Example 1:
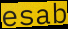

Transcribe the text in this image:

esab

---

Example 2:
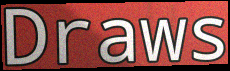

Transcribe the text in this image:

Draws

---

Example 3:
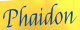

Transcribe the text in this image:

Phaidon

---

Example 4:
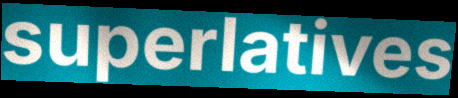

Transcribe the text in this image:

superlatives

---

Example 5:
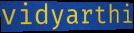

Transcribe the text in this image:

vidyarthi